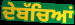
ਦੇਬੱਚਿਆਂ